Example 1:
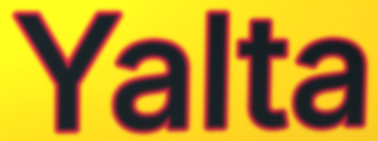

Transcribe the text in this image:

Yalta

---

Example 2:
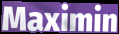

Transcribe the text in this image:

Maximin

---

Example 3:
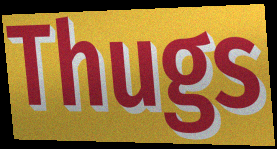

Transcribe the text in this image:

Thugs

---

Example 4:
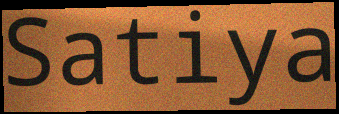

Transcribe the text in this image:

Satiya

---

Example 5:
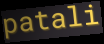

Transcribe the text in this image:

patali